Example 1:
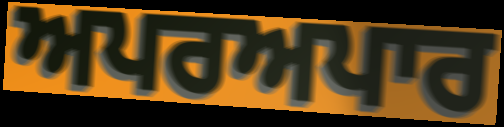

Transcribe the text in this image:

ਅਪਰਅਪਾਰ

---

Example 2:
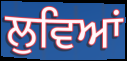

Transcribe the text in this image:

ਲੁਵਿਆਂ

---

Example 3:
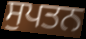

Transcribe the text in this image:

ਸੁਪਤਨ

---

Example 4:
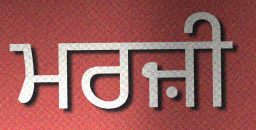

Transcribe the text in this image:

ਮਰਜ਼ੀ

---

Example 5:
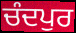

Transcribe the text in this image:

ਚੰਦਪੁਰ